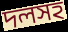
দলসহ